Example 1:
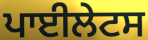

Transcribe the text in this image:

ਪਾਈਲੇਟਸ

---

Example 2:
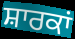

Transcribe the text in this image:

ਸ਼ਾਰਕਾਂ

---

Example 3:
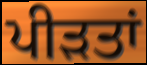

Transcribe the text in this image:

ਪੀੜਤਾਂ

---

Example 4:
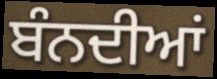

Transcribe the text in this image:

ਬੰਨਦੀਆਂ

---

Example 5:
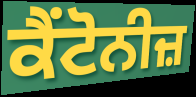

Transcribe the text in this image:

ਕੈਂਟੋਨੀਜ਼